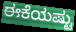
ಈಕೆಯಷ್ಟು